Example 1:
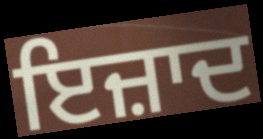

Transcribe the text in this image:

ਇਜ਼ਾਦ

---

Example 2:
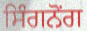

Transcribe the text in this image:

ਸਿੰਗਨੋਂਗ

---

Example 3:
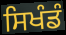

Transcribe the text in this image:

ਸਿਖੰਡੰ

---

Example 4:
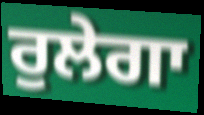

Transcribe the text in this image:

ਰੁਲੇਗਾ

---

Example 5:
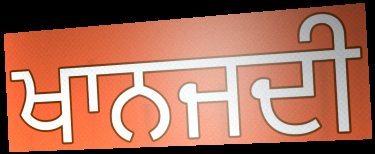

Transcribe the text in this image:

ਖਾਨਜਦੀ